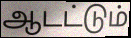
ஆடட்டும்